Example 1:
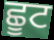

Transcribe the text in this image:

ਛੂਟ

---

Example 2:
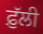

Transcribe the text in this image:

ਫ਼ੁੱਲੀ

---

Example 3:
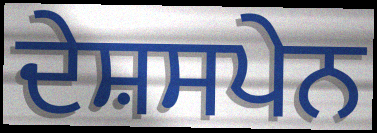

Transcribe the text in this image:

ਦੇਸ਼ਸਪੇਨ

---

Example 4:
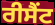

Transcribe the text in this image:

ਰੀਸੈਂਟ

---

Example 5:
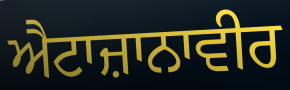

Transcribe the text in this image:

ਐਟਾਜ਼ਾਨਾਵੀਰ